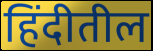
हिंदीतील